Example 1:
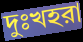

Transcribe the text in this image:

দুঃখহরা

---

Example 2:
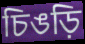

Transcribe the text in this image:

চিঙড়ি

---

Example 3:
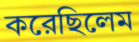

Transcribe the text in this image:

করেছিলেম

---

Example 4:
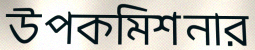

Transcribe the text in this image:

উপকমিশনার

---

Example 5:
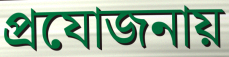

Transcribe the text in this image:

প্রযোজনায়